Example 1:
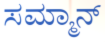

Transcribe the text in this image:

ಸಮ್ಮಾನ್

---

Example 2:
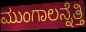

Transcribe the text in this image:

ಮುಂಗಾಲನ್ನೆತ್ತಿ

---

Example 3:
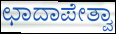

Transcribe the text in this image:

ಛಾದಾಪೇತ್ವಾ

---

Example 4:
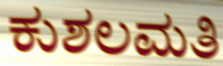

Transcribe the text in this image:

ಕುಶಲಮತಿ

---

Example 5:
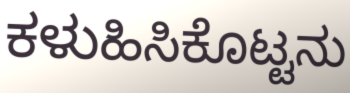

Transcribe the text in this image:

ಕಳುಹಿಸಿಕೊಟ್ಟನು